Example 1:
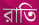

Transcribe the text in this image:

রাতি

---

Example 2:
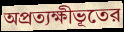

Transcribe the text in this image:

অপ্রত্যক্ষীভূতের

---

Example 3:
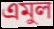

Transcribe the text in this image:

এমুল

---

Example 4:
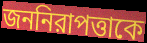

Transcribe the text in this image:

জননিরাপত্তাকে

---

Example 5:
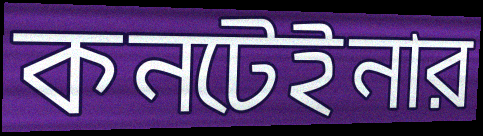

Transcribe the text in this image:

কনটেইনার